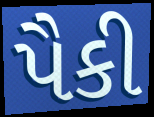
પૈકી